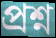
প্রশ্ন